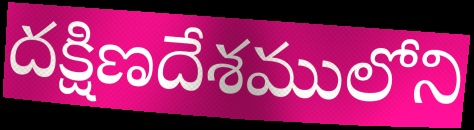
దక్షిణదేశములోని